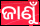
ଜାଣୁଁ